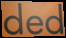
ded